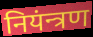
नियंन्त्रण